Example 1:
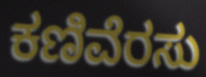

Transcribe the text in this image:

ಕಣಿವೆರಸು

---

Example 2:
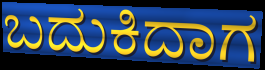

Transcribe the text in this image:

ಬದುಕಿದಾಗ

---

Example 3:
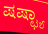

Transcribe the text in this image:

ಷಷ್ಟ್ಯಾ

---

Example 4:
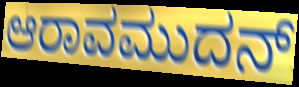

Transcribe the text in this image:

ಆರಾವಮುದನ್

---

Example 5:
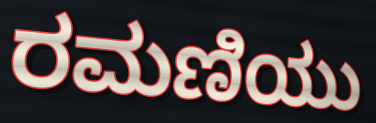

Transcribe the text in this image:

ರಮಣಿಯು